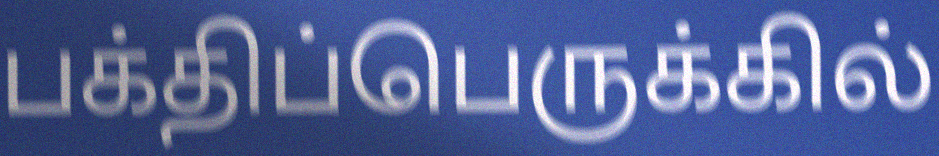
பக்திப்பெருக்கில்